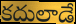
కదులాడే